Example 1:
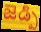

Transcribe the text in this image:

జెడ్పి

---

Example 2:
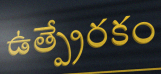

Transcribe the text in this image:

ఉత్ప్రేరకం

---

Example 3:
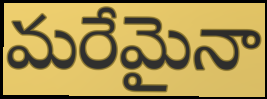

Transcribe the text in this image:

మరేమైనా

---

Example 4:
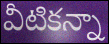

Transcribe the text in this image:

వీటికన్నా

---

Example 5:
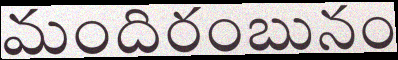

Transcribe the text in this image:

మందిరంబునం